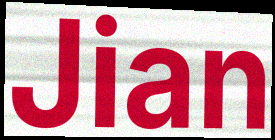
Jian